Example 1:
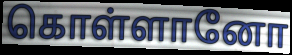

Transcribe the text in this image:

கொள்ளானோ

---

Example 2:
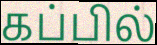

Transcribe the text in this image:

கப்பில்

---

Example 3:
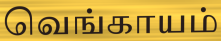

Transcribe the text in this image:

வெங்காயம்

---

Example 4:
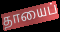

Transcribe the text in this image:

தாயைப்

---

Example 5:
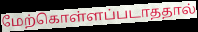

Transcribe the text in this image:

மேற்கொள்ளப்படாததால்